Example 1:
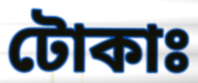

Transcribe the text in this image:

টোকাঃ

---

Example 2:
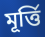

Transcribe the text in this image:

মূৰ্ত্তি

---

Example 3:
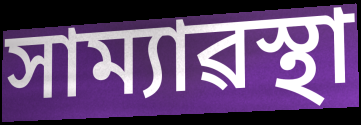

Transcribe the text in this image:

সাম্যাৱস্থা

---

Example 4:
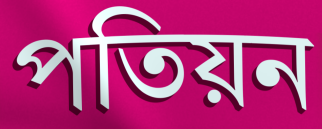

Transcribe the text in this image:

পতিয়ন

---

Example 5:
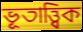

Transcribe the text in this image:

ভূতাত্ত্বিক